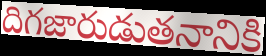
దిగజారుడుతనానికి